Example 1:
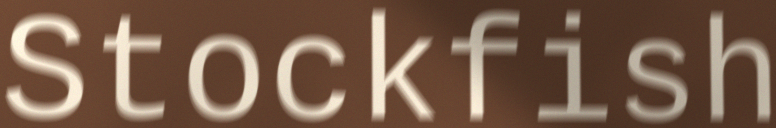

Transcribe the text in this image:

Stockfish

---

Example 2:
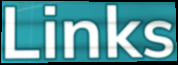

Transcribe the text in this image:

Links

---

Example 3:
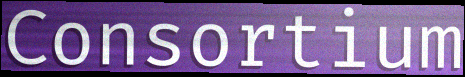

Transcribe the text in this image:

Consortium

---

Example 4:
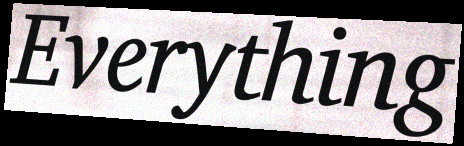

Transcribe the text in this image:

Everything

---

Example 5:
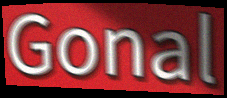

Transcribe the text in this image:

Gonal